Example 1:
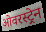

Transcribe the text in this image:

ओवरस्ट्रेन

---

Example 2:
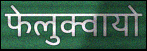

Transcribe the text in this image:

फेलुक्वायो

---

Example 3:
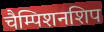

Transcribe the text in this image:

चैम्पिशनशिप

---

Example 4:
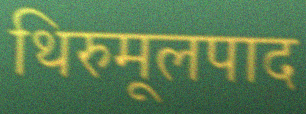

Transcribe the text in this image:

थिरुमूलपाद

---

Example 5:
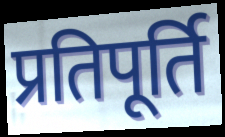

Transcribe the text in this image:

प्रतिपूर्ति